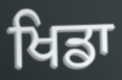
ਖਿਡਾ